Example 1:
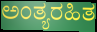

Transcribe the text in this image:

ಅಂತ್ಯರಹಿತ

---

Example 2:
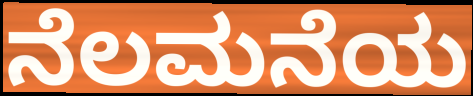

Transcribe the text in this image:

ನೆಲಮನೆಯ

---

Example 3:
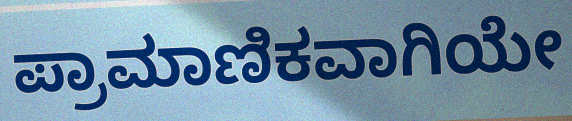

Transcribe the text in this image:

ಪ್ರಾಮಾಣಿಕವಾಗಿಯೇ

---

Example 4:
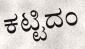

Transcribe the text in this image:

ಕಟ್ಟಿದಂ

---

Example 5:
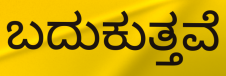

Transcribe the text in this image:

ಬದುಕುತ್ತವೆ